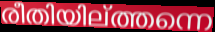
രീതിയില്ത്തന്നെ